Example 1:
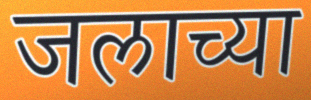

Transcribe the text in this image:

जलाच्या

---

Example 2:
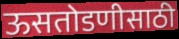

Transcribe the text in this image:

ऊसतोडणीसाठी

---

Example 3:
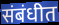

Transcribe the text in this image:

संबंधीत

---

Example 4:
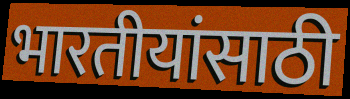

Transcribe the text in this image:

भारतीयांसाठी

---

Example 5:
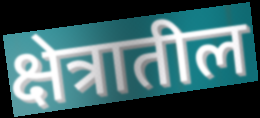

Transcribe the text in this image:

क्षेत्रातील